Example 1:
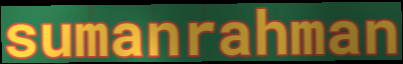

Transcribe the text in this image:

sumanrahman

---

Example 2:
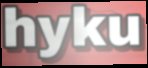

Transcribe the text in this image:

hyku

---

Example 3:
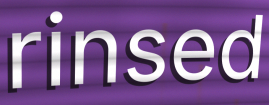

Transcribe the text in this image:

rinsed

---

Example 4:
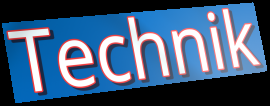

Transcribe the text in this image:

Technik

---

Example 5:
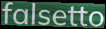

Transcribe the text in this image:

falsetto